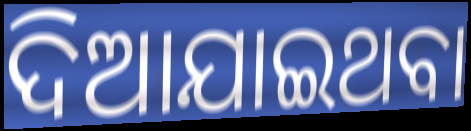
ଦିଆଯାଇଥବା